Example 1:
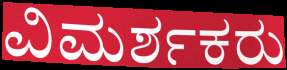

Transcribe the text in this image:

ವಿಮರ್ಶಕರು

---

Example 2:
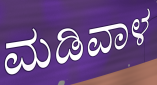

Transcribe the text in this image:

ಮಡಿವಾಳ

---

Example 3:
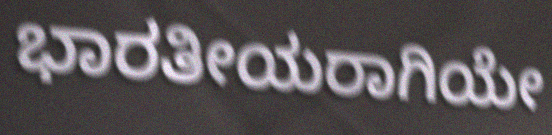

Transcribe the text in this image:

ಭಾರತೀಯರಾಗಿಯೇ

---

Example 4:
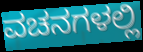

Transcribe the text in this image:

ವಚನಗಳಲ್ಲಿ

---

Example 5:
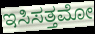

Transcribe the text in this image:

ಇಸಿಸತ್ತಮೋ